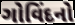
ગોવિંદનો